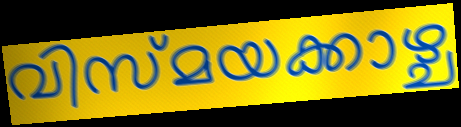
വിസ്മയക്കാഴ്ച